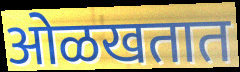
ओळखतात